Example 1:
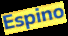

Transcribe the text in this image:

Espino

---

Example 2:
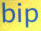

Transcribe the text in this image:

bip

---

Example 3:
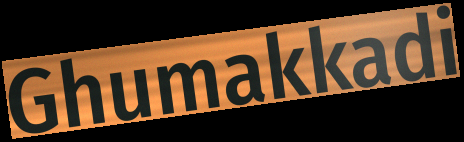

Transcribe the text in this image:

Ghumakkadi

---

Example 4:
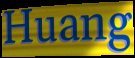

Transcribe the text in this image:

Huang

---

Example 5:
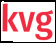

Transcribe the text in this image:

kvg